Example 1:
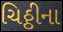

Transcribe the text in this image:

ચિઠ્ઠીના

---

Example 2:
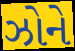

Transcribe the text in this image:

ઝોને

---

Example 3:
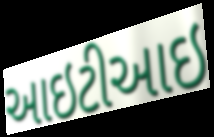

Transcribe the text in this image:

આઇટીઆઇ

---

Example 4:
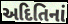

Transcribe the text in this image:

અદિતિનાં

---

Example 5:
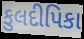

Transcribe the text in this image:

કુલદીપિકા